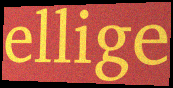
ellige